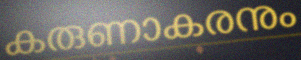
കരുണാകരനും